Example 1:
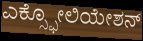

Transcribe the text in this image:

ಎಕ್ಸ್ಫೋಲಿಯೇಶನ್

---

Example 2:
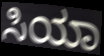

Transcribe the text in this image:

ಸಿಯಾ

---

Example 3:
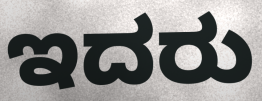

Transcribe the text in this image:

ಇದರು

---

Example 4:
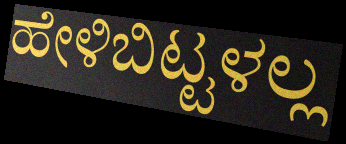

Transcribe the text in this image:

ಹೇಳಿಬಿಟ್ಟಳಲ್ಲ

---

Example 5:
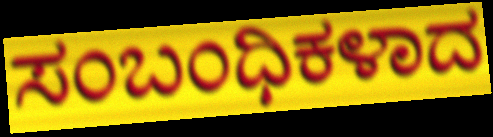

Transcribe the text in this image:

ಸಂಬಂಧಿಕಳಾದ